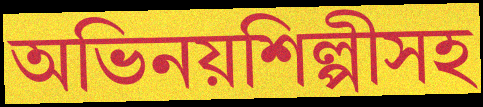
অভিনয়শিল্পীসহ